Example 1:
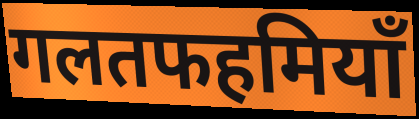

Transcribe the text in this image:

गलतफहमियाँ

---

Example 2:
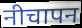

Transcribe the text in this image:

नीचापन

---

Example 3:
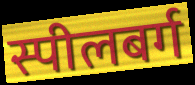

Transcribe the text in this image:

स्पीलबर्ग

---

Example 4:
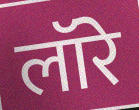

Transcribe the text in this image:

लॉरे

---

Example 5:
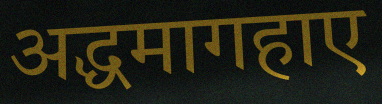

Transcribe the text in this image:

अद्धमागहाए